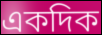
একদিক